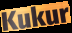
Kukur